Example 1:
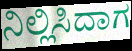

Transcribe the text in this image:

ನಿಲ್ಲಿಸಿದಾಗ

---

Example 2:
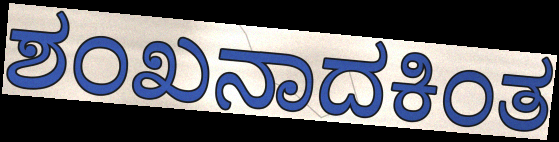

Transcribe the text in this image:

ಶಂಖನಾದಕಿಂತ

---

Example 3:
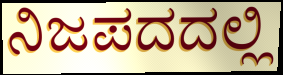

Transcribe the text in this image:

ನಿಜಪದದಲ್ಲಿ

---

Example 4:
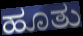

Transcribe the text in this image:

ಹೂತು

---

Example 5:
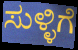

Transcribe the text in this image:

ಸುಳ್ಳಿಗೆ